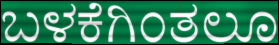
ಬಳಕೆಗಿಂತಲೂ